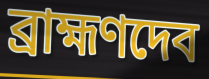
ব্রাহ্মণদেব